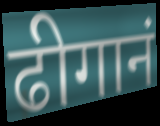
ढीगानं